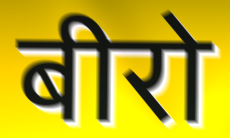
बीरो